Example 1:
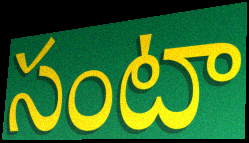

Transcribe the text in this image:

సంటా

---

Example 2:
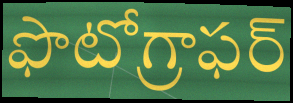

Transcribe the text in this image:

ఫొటోగ్రాఫర్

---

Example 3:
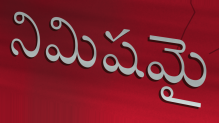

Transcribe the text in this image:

నిమిషమై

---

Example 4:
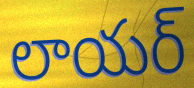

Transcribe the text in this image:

లాయర్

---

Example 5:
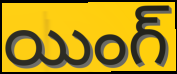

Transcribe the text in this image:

యింగ్